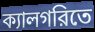
ক্যালগরিতে